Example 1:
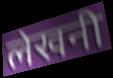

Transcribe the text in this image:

लेखनी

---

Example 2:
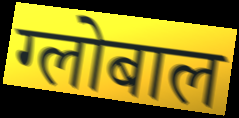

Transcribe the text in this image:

ग्लोबाल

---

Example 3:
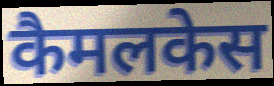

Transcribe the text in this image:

कैमलकेस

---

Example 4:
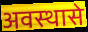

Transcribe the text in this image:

अवस्थासे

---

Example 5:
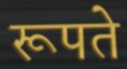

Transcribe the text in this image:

रूपते